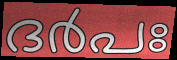
ദർപഃ